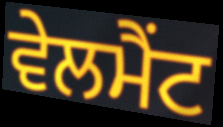
ਵੇਲਮੈਂਟ